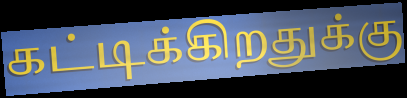
கட்டிக்கிறதுக்கு